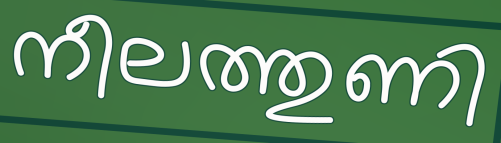
നീലത്തുണി